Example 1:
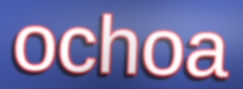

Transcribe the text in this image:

ochoa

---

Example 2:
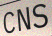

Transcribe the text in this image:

CNS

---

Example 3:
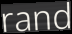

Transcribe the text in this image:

rand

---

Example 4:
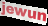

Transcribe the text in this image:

jewun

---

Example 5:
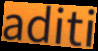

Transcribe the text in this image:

aditi